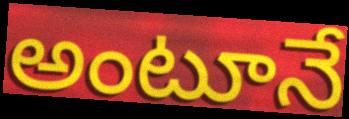
అంటూనే